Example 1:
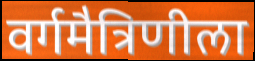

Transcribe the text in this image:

वर्गमैत्रिणीला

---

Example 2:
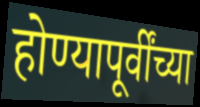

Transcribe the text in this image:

होण्यापूर्वींच्या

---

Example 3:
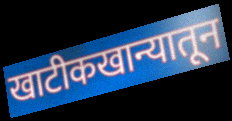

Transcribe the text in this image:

खाटीकखान्यातून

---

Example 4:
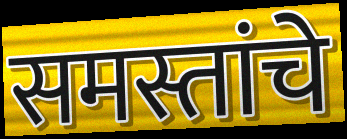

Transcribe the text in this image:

समस्तांचे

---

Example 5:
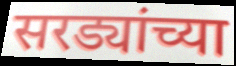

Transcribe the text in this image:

सरड्यांच्या